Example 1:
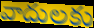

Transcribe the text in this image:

వాదులకు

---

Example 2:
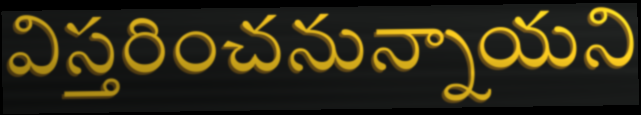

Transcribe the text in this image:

విస్తరించనున్నాయని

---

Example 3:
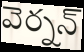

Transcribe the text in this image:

వెర్నన్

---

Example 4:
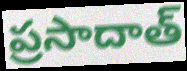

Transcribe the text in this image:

ప్రసాదాత్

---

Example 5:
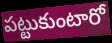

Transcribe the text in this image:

పట్టుకుంటారో